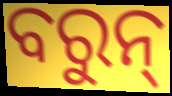
ବରୁନ୍